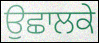
ਉਛਾਲਕੇ